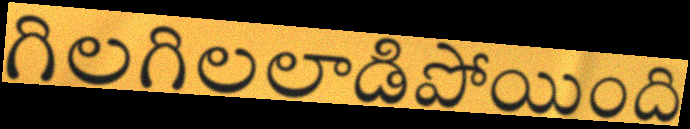
గిలగిలలాడిపోయింది